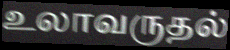
உலாவருதல்